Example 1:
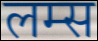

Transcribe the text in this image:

लम्स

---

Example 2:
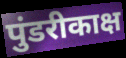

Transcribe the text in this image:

पुंडरीकाक्ष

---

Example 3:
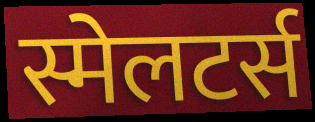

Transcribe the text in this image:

स्मेलटर्स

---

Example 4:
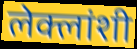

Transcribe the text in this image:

लेक्लांशी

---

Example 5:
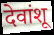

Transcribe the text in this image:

देवांशू